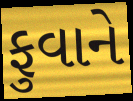
ફુવાને